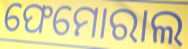
ଫେମୋରାଲ